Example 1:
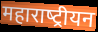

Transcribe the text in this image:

महाराष्ट्रीयन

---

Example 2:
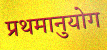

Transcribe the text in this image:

प्रथमानुयोग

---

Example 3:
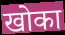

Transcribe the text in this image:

खोका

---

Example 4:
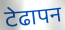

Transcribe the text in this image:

टेढापन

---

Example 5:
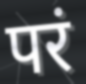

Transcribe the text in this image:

परं